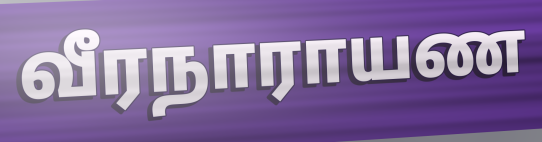
வீரநாராயண